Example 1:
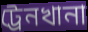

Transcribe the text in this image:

ট্রেনখানা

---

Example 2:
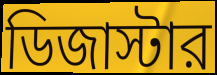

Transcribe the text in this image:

ডিজাস্টার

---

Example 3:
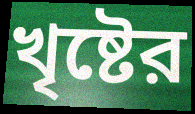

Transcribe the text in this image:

খৃষ্টের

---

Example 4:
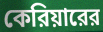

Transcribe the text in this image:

কেরিয়ারের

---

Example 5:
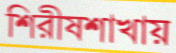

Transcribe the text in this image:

শিরীষশাখায়